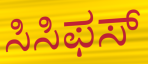
ಸಿಸಿಫಸ್